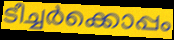
ടീച്ചർക്കൊപ്പം